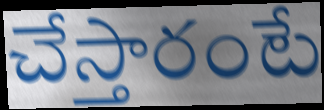
చేస్తారంటే